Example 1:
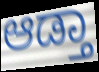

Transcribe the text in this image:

ಆಡ್ತಾ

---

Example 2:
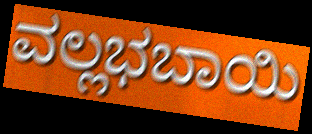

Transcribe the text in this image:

ವಲ್ಲಭಬಾಯಿ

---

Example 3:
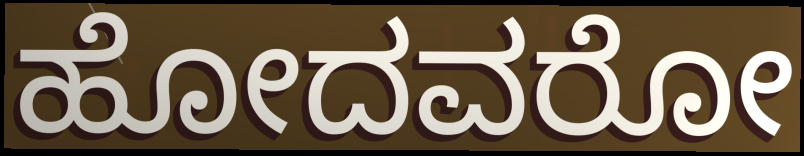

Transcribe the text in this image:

ಹೋದವರೋ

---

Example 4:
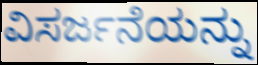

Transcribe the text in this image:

ವಿಸರ್ಜನೆಯನ್ನು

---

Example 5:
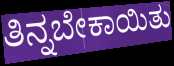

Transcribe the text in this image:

ತಿನ್ನಬೇಕಾಯಿತು